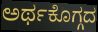
ಅರ್ಥಕೊಗ್ಗದ